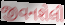
જીવનશેલી